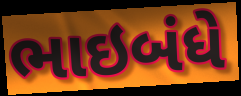
ભાઇબંધે